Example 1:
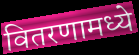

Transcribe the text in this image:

वितरणामध्ये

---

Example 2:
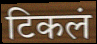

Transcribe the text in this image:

टिकलं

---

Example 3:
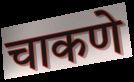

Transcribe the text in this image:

चाकणे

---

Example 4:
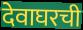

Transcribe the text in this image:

देवाघरची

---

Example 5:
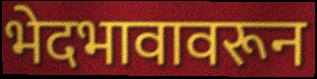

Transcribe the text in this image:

भेदभावावरून